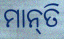
ମାନ୍‌ତି